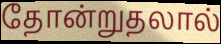
தோன்றுதலால்